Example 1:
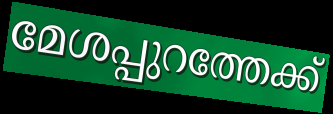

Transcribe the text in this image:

മേശപ്പുറത്തേക്ക്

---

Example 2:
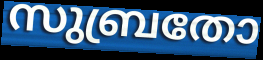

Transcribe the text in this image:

സുബ്രതോ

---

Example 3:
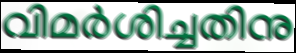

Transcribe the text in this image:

വിമർശിച്ചതിനു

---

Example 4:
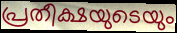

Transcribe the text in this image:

പ്രതീക്ഷയുടെയും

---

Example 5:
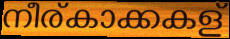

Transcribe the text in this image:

നീര്കാക്കകള്